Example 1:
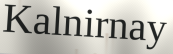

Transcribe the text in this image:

Kalnirnay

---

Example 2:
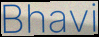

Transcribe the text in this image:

Bhavi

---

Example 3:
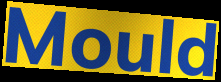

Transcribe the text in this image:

Mould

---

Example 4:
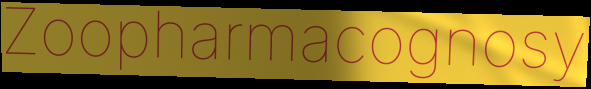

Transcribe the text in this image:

Zoopharmacognosy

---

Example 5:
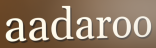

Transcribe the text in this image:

aadaroo